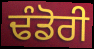
ਢੰਡੋਰੀ